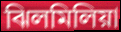
ঝিলমিলিয়া